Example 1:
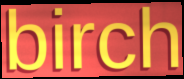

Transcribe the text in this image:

birch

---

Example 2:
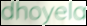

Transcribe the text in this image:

dhoyela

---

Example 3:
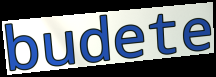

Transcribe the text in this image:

budete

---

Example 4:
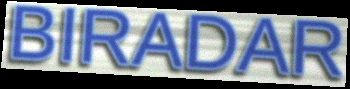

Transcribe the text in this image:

BIRADAR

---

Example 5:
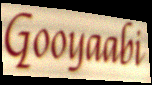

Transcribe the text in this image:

Gooyaabi